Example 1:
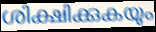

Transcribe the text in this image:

ശിക്ഷിക്കുകയും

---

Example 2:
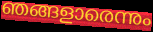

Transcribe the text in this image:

ഞങ്ങളാരെന്നും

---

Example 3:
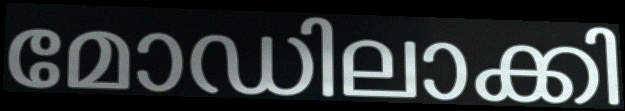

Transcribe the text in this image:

മോഡിലാക്കി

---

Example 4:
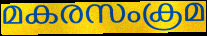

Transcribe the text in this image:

മകരസംക്രമ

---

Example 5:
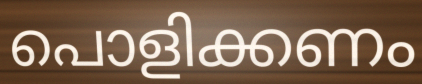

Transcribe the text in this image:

പൊളിക്കണം